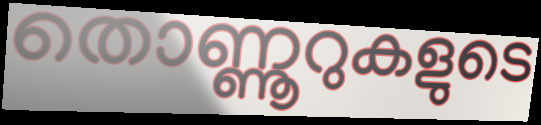
തൊണ്ണൂറുകളുടെ